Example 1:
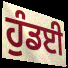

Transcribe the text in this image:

ਹੁੰਡਈ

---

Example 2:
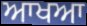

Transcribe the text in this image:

ਆਖਆ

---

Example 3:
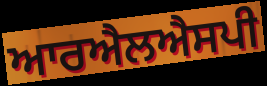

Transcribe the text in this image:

ਆਰਐਲਐਸਪੀ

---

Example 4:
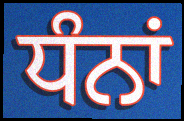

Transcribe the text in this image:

ਧੰਨਾਂ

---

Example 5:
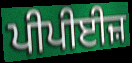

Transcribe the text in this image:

ਪੀਪੀਈਜ਼